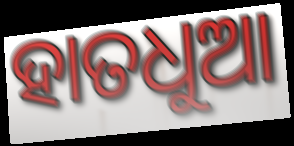
ହାତଧୁଆ